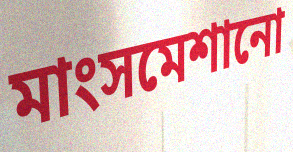
মাংসমেশানো